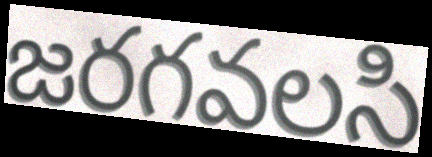
జరగవలసి